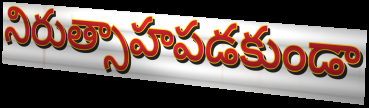
నిరుత్సాహపడకుండా